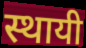
स्थायी